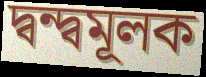
দ্বন্দ্বমূলক